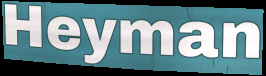
Heyman